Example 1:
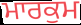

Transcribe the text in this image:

ਮਾਰਕੁਮ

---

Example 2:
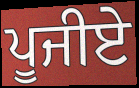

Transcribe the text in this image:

ਪੂਜੀਏ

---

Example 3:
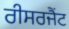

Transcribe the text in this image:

ਰੀਸਰਜੈਂਟ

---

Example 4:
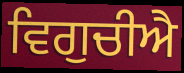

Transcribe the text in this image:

ਵਿਗੁਚੀਐ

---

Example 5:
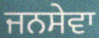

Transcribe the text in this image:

ਜਨਸੇਵਾ